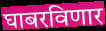
घाबरविणार